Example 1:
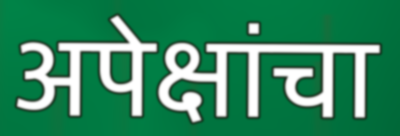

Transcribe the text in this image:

अपेक्षांचा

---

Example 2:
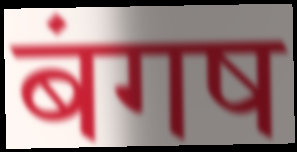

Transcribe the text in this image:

बंगष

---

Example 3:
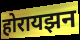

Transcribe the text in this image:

होरायझन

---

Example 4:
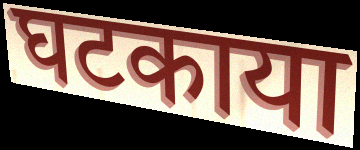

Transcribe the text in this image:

घटकाया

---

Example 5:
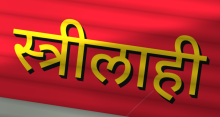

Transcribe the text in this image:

स्त्रीलाही